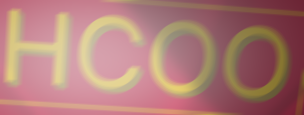
HCOO